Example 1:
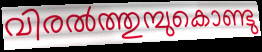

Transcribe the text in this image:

വിരൽത്തുമ്പുകൊണ്ടു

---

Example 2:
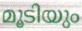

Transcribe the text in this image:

മൂടിയും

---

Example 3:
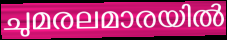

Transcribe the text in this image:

ചുമരലമാരയിൽ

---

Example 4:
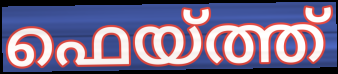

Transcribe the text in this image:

ഫെയ്ത്ത്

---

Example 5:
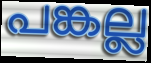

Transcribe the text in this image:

പങ്കല്ല